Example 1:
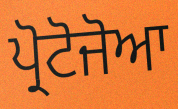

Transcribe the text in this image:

ਪ੍ਰੋਟੋਜੋਆ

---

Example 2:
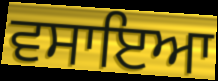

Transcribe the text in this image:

ਵਸਾਇਆ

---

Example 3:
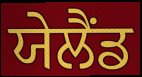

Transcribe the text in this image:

ਯੇਲੈਂਡ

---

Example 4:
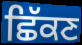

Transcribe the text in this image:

ਛਿੱਕਣ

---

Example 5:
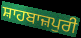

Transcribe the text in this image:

ਸ਼ਾਹਬਾਜ਼ਪੁਰੀ